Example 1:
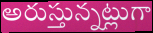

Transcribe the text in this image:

అరుస్తున్నట్లుగా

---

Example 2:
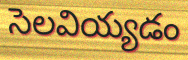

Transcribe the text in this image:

సెలవియ్యడం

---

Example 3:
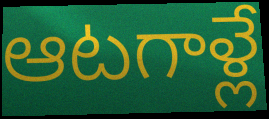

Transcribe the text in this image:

ఆటగాళ్లే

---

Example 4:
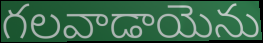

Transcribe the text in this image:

గలవాడాయెను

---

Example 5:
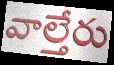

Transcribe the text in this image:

వాల్తేరు